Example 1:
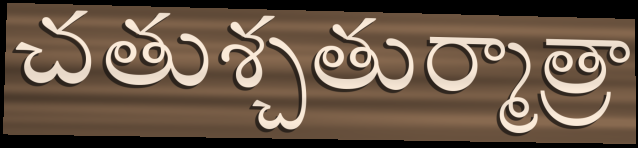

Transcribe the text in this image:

చతుశ్చతుర్మాత్రా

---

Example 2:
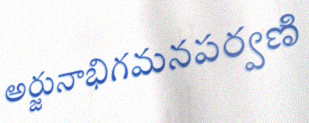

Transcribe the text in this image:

అర్జునాభిగమనపర్వణి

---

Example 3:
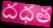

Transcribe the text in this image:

దధత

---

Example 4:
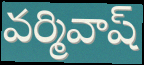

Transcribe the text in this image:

వర్మివాష్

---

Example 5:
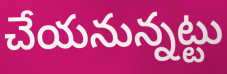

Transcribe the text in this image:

చేయనున్నట్టు